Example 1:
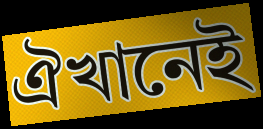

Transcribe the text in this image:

ঐখানেই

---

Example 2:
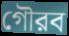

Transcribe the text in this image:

গৌরব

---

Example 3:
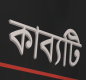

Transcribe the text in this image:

কাব্যটি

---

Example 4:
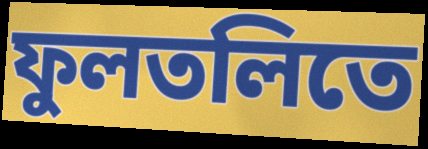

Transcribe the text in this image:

ফুলতলিতে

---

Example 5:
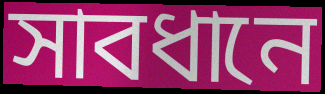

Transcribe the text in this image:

সাবধানে